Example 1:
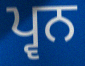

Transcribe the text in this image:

ਪ੍ਵਨ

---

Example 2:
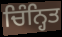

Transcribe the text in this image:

ਚਿੰਨ੍ਹਿਤ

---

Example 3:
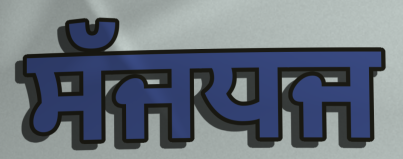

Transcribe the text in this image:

ਸੱਜਧਜ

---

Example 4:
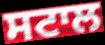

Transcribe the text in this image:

ਸਟਾਲ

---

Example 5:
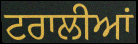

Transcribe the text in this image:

ਟਰਾਲੀਆਂ